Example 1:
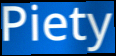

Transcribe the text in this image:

Piety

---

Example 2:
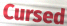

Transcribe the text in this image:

Cursed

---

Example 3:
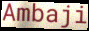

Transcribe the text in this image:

Ambaji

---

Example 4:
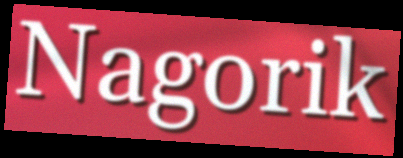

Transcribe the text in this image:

Nagorik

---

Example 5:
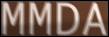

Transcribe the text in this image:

MMDA